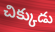
చిక్కుడు